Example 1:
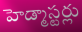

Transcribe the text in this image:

హెడ్మాస్టర్లు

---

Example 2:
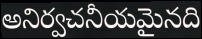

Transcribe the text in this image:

అనిర్వచనీయమైనది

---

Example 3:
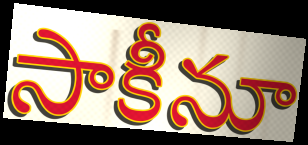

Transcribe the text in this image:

సాకీనూ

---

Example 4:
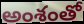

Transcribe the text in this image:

అంశంతో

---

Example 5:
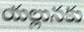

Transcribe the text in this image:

యల్లునకు